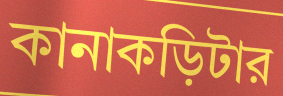
কানাকড়িটার